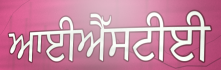
ਆਈਐੱਸਟੀਈ